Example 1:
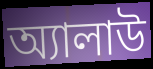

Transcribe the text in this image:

অ্যালাউ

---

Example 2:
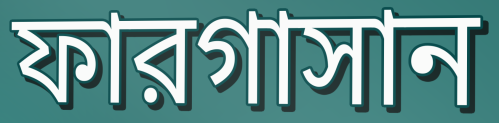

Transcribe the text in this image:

ফারগাসান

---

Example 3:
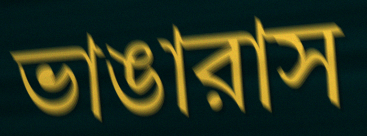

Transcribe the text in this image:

ভাঙারাস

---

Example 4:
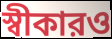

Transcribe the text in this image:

স্বীকারও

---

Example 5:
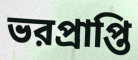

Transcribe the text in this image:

ভরপ্রাপ্তি